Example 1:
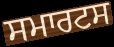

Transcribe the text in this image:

ਸਮਾਰਟਸ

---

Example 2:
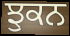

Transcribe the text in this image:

ਝੁਕਨ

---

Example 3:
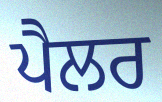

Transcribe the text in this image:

ਪੈਲਰ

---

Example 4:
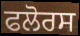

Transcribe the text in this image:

ਫਲੋਰਸ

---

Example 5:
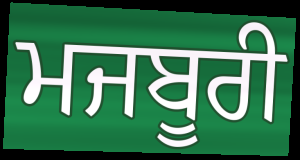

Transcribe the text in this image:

ਮਜਬੂਰੀ